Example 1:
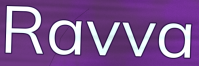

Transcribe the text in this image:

Ravva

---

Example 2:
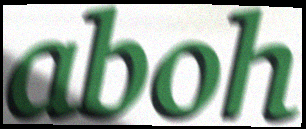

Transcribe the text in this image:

aboh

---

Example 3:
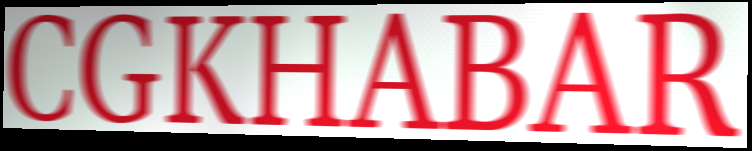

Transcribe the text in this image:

CGKHABAR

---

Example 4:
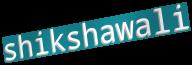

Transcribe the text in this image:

shikshawali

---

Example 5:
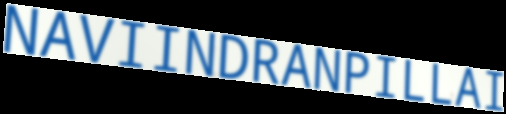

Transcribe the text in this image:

NAVIINDRANPILLAI